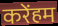
करेंहम